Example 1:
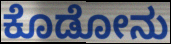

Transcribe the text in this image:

ಕೊಡೋನು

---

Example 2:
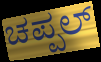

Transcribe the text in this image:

ಚಪ್ಪಲ್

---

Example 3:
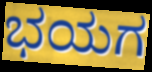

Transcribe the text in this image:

ಭಯಗ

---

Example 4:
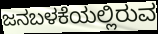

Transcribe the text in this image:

ಜನಬಳಕೆಯಲ್ಲಿರುವ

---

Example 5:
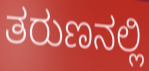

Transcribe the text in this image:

ತರುಣನಲ್ಲಿ